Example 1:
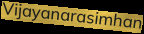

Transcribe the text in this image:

Vijayanarasimhan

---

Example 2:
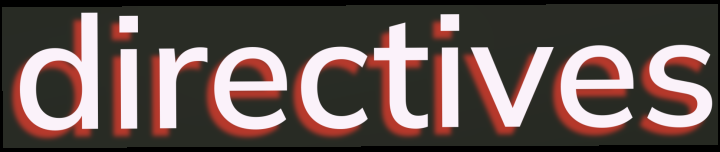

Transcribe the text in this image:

directives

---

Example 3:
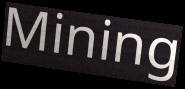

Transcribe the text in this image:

Mining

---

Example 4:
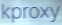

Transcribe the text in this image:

kproxy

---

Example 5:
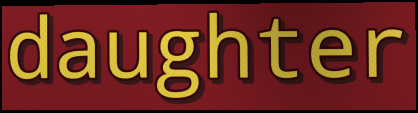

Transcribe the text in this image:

daughter